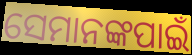
ସେମାନଙ୍କପାଇଁ